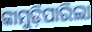
କାମୁଡ଼ିପାରିଲା